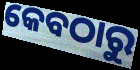
କେବଠାରୁ